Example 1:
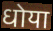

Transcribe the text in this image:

धोया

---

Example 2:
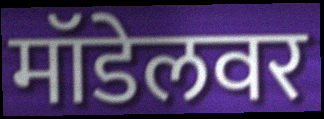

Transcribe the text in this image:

मॉडेलवर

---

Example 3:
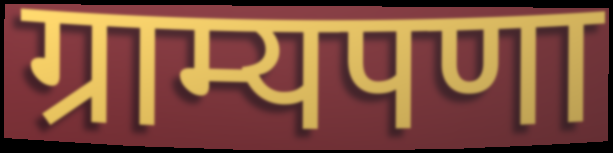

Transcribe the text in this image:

ग्राम्यपणा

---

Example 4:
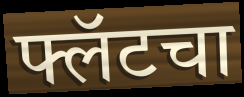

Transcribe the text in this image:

फ्लॅटचा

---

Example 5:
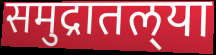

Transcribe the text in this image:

समुद्रातल्या